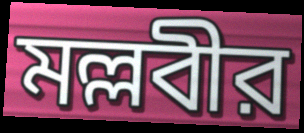
মল্লবীর